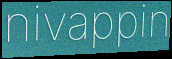
nivappin